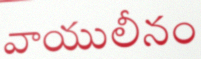
వాయులీనం